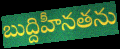
బుద్దిహీనతను